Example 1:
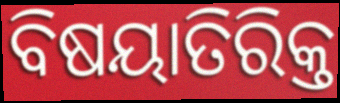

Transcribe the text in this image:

ବିଷୟାତିରିକ୍ତ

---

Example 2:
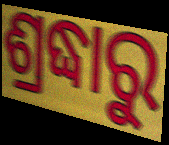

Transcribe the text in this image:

ଶ୍ରଦ୍ଧାରୁ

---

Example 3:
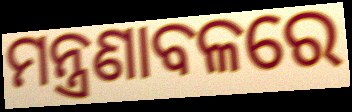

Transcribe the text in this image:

ମନ୍ତ୍ରଣାବଳରେ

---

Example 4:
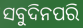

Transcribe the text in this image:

ସବୁଦିନପରି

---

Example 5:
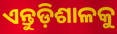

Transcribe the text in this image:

ଏନ୍ତୁଡ଼ିଶାଳକୁ